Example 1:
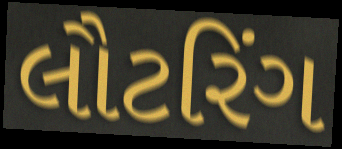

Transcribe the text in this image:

લૌટરિંગ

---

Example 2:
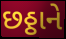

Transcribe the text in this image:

છઠ્ઠાને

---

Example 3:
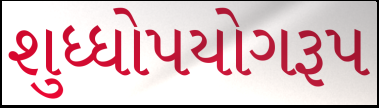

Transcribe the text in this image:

શુધ્ધોપયોગરૂપ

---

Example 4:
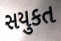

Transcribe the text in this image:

સયુકત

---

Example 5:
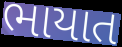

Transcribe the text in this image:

ભાયાત